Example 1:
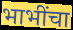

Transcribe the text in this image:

भाभींचा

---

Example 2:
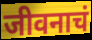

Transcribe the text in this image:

जीवनाचं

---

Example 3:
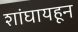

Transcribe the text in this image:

शांघायहून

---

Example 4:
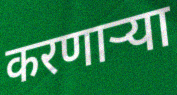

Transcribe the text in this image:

करणार्‍या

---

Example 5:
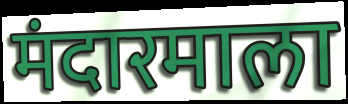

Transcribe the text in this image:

मंदारमाला